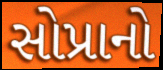
સોપ્રાનો